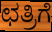
ಛತ್ರಿಗೆ